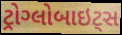
ટ્રોગ્લોબાઇટ્સ